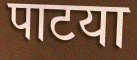
पाटया